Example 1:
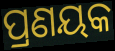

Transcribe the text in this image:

ପ୍ରଣୟକ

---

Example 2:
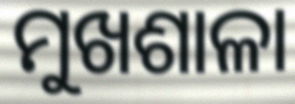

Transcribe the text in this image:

ମୁଖଶାଳା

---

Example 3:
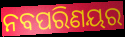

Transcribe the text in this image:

ନବପରିଣୟର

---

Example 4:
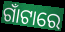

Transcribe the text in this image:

ଗାଁଟାରେ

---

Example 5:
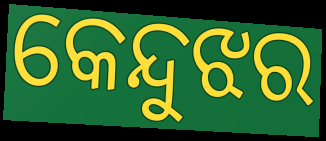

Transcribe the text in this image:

କେନ୍ଦୁଝର